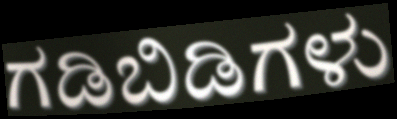
ಗಡಿಬಿಡಿಗಳು